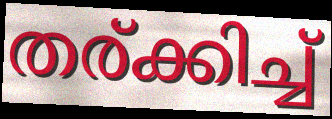
തര്ക്കിച്ച്